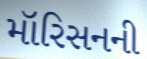
મૉરિસનની